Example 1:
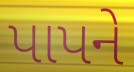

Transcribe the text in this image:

પાપને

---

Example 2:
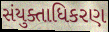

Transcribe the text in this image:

સંયુક્તાધિકરણ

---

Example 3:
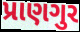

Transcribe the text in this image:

પ્રાણગુર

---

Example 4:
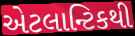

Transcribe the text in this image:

એટલાન્ટિકથી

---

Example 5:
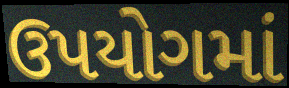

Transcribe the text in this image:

ઉપયોગમાં